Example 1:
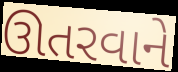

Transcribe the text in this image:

ઊતરવાને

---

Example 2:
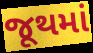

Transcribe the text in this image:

જૂથમાં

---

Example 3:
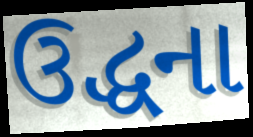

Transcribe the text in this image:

ઉદ્ધના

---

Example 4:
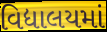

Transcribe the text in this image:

વિદ્યાલયમાં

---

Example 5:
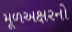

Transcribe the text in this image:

મૂળઅક્ષરનો